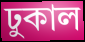
ঢুকাল